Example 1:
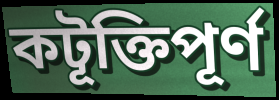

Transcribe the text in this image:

কটূক্তিপূর্ণ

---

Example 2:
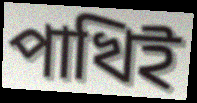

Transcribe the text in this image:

পাখিই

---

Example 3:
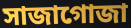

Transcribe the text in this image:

সাজাগোজা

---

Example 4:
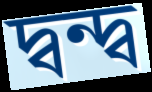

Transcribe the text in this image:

দ্বন্দ্ব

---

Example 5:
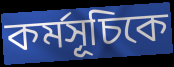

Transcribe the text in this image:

কর্মসূচিকে